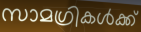
സാമഗ്രികൾക്ക്